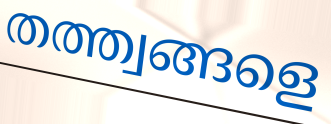
തത്ത്വങ്ങളെ